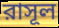
রাসূল